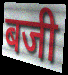
बजी